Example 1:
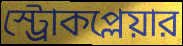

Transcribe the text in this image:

স্ট্রোকপ্লেয়ার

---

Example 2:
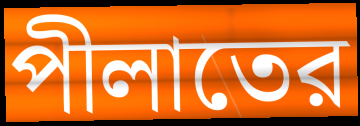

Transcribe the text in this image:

পীলাতের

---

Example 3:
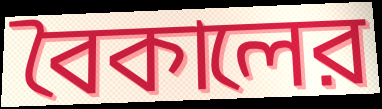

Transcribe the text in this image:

বৈকালের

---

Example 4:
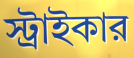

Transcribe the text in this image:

স্ট্রাইকার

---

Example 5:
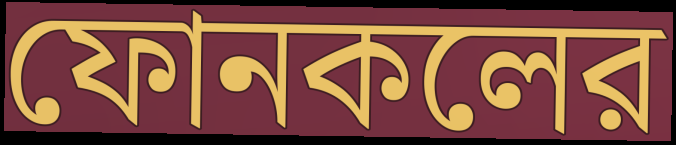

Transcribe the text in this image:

ফোনকলের